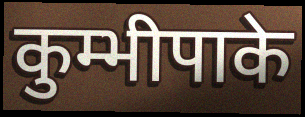
कुम्भीपाके